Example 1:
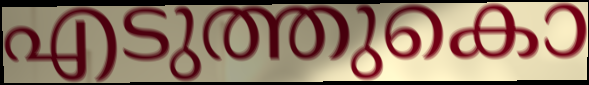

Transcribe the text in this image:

എടുത്തുകൊ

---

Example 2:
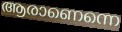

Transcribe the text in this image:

ആരാണെന്നെ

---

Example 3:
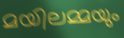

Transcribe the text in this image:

മയിലമ്മയും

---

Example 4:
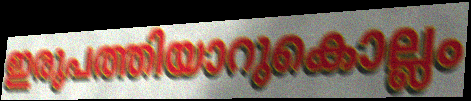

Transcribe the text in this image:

ഇരുപത്തിയാറുകൊല്ലം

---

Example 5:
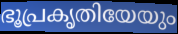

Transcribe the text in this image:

ഭൂപ്രകൃതിയേയും